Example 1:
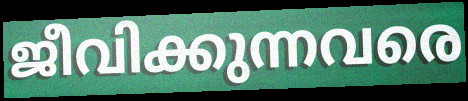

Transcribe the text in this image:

ജീവിക്കുന്നവരെ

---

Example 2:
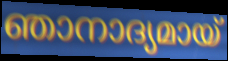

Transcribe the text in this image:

ഞാനാദ്യമായ്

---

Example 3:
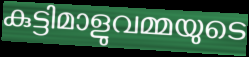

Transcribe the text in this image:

കുട്ടിമാളുവമ്മയുടെ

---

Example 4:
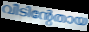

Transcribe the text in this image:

വീടിന്റേതായ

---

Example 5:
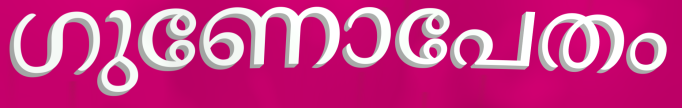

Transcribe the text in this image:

ഗുണോപേതം